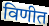
विणीत